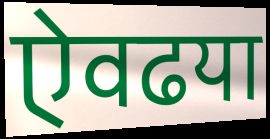
ऐवढया